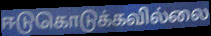
ஈடுகொடுக்கவில்லை